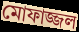
মোফাজ্জল